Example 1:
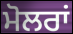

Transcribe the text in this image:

ਮੋਲਰਾਂ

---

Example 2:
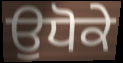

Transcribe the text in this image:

ਉਧੋਕੇ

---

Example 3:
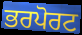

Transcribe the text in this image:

ਭਰਪੋਰਟ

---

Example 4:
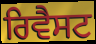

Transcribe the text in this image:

ਰਿਵੈਸਟ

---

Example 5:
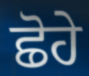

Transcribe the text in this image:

ਛੋਹੇ